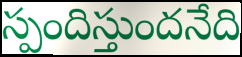
స్పందిస్తుందనేది